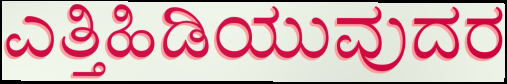
ಎತ್ತಿಹಿಡಿಯುವುದರ